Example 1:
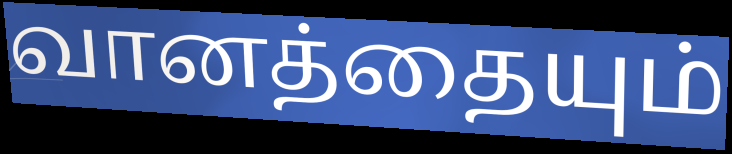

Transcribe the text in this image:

வானத்தையும்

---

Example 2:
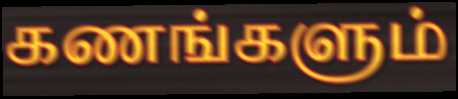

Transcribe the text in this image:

கணங்களும்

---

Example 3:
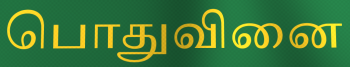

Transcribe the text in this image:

பொதுவினை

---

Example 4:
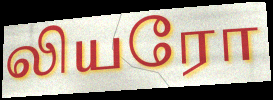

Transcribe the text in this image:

லியரோ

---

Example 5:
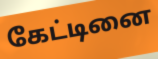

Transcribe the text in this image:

கேட்டினை